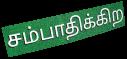
சம்பாதிக்கிற